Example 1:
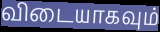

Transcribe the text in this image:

விடையாகவும்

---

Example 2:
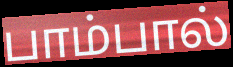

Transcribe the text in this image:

பாம்பால்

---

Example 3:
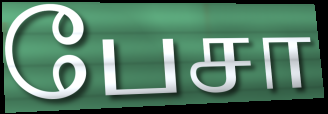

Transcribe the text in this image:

பேசா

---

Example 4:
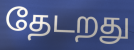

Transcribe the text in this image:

தேடறது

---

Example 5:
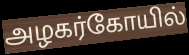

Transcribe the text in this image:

அழகர்கோயில்